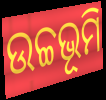
ଉଚ୍ଚଭୂମି